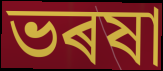
ভৰষা